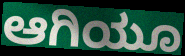
ಆಗಿಯೂ